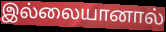
இல்லையானால்